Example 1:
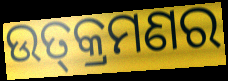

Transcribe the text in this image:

ଉତ୍‍କ୍ରମଣର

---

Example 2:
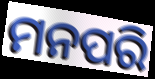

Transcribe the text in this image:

ମନପରି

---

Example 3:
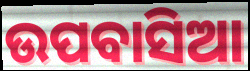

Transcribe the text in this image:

ଉପବାସିଆ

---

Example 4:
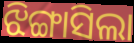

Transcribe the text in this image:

ଝିଙ୍ଗାସିଲା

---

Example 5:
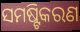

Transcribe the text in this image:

ସମଷ୍ଟିକରଣ